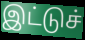
இட்டுச்